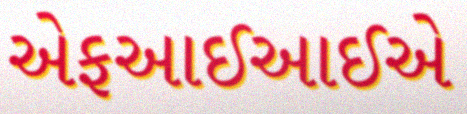
એફઆઈઆઈએ